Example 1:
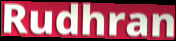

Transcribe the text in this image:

Rudhran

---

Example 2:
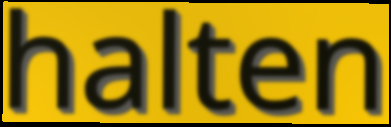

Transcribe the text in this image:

halten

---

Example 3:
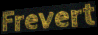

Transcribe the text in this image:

Frevert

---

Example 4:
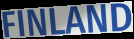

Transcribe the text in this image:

FINLAND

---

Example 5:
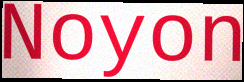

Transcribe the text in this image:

Noyon